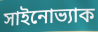
সাইনোভ্যাক